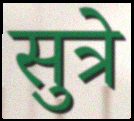
सुत्रे